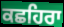
ਕਛਹਿਰਾ